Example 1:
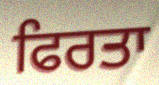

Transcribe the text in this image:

ਫਿਰਤਾ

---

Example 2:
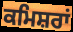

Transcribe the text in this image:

ਕਮਿਸ਼ਰਾਂ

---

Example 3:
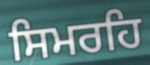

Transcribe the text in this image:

ਸਿਮਰਹਿ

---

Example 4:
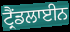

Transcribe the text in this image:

ਟ੍ਰੈਂਡਲਾਈਨ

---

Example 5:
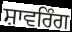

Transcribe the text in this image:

ਸ਼ਾਵਰਿੰਗ